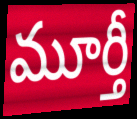
మూర్తీ